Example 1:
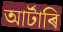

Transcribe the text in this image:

আৰ্টাৰি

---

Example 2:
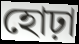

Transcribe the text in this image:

হোঢ়া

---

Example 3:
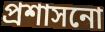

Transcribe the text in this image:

প্ৰশাসনো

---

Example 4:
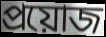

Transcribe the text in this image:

প্ৰয়োজ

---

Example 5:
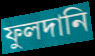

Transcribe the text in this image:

ফুলদানি